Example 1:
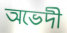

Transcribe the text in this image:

অভেদী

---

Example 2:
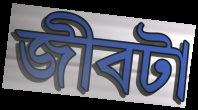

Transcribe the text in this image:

জীবটা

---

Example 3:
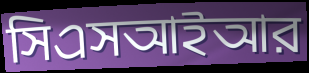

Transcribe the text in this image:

সিএসআইআর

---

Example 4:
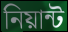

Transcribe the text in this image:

নিয়ান্ট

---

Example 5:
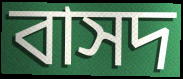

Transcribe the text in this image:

বাসদ